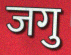
जगु